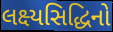
લક્ષ્યસિદ્ધિનો